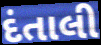
દંતાલી